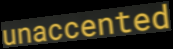
unaccented